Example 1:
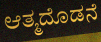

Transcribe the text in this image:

ಆತ್ಮದೊಡನೆ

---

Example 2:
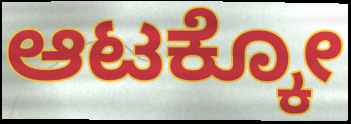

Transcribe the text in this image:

ಆಟಕ್ಕೋ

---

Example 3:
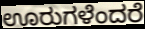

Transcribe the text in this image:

ಊರುಗಳೆಂದರೆ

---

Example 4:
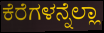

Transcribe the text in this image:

ಕೆರೆಗಳನ್ನೆಲ್ಲಾ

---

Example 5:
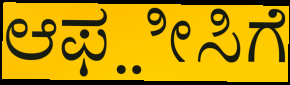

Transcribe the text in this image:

ಆಫ಼ೀಸಿಗೆ